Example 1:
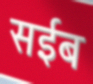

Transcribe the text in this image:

सईब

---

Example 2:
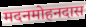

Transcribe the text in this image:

मदनमोहनदास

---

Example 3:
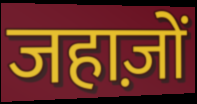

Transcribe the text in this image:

जहाज़ों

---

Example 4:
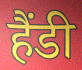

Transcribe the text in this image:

हैंडी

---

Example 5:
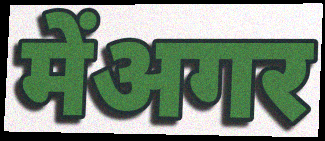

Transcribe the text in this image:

मेंअगर